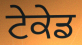
ਟੇਕੇਡ